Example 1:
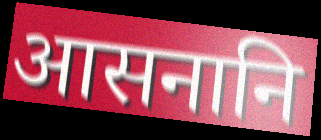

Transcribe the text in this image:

आसनानि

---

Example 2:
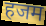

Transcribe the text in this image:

हजम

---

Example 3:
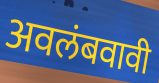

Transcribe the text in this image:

अवलंबवावी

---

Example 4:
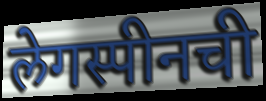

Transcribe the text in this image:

लेगस्पीनची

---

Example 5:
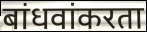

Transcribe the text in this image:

बांधवांकरता